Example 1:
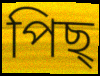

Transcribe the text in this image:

পিছ্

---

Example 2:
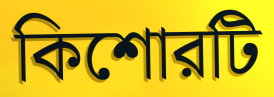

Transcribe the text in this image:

কিশোরটি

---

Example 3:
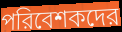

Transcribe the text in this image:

পরিবেশকদের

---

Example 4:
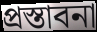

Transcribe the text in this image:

প্রস্তাবনা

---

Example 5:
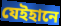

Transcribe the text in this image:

যেইহানে